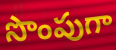
సొంపుగా